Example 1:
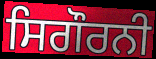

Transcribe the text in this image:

ਸਿਗੌਰਨੀ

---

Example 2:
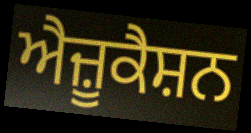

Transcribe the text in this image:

ਐਜ਼ੂਕੈਸ਼ਨ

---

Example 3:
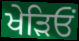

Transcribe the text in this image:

ਖੇੜਿਓਂ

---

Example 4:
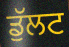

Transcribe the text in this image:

ਡੁੱਲਟ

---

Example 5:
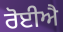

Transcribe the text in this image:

ਰੋਈਐ